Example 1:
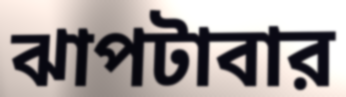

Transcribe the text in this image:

ঝাপটাবার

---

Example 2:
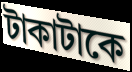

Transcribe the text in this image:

টাকাটাকে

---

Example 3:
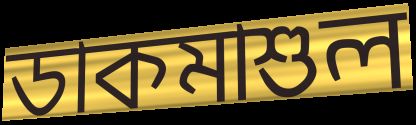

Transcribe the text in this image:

ডাকমাশুল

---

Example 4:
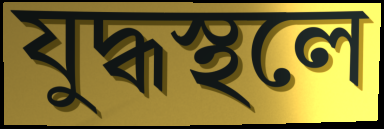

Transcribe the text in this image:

যুদ্ধস্থলে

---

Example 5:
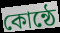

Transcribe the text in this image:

কোন্ঠে